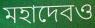
মহাদেবও